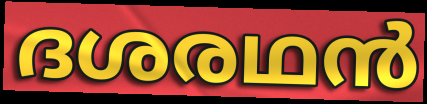
ദശരഥൻ